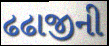
ઢઢાજીની